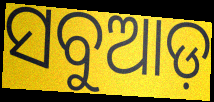
ସବୁଆଡ଼